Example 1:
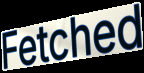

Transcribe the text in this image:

Fetched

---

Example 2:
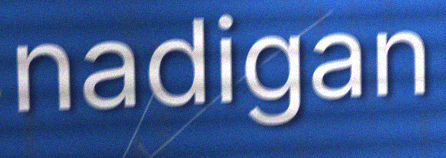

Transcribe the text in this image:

nadigan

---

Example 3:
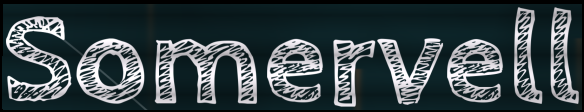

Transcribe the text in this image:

Somervell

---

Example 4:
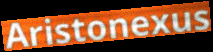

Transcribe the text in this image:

Aristonexus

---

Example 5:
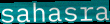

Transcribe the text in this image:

sahasra